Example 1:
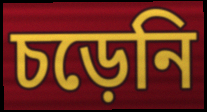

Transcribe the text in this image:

চড়েনি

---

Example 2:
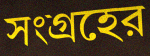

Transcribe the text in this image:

সংগ্রহের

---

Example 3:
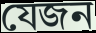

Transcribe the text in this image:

যেজন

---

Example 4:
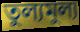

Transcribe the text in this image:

তুল্যমুল্য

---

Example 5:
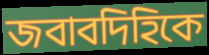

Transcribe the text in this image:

জবাবদিহিকে